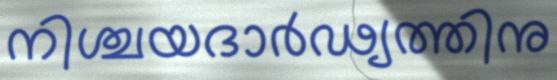
നിശ്ചയദാർഢ്യത്തിനു